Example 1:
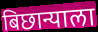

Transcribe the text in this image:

बिछान्याला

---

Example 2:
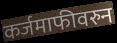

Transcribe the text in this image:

कर्जमाफीवरुन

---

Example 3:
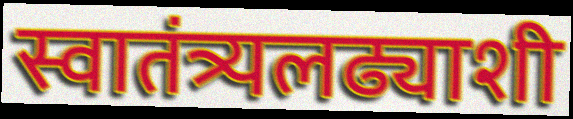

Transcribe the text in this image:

स्वातंत्र्यलढ्याशी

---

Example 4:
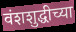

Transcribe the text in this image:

वंशशुद्धीच्या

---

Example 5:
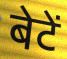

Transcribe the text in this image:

बेटें